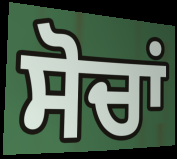
ਸੋਚਾਂ